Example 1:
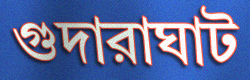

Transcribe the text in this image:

গুদারাঘাট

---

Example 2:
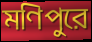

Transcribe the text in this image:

মণিপুরে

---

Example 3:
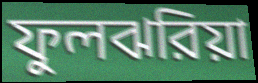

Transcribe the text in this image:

ফুলঝরিয়া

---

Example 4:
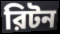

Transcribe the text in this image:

রিটন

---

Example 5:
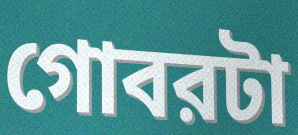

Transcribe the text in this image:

গোবরটা